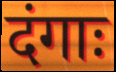
दंगाः